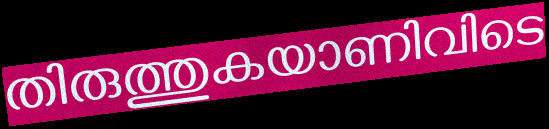
തിരുത്തുകയാണിവിടെ